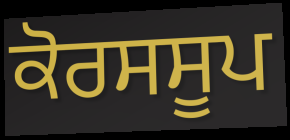
ਕੋਰਸਸੂਪ